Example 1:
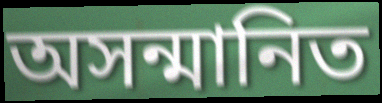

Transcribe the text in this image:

অসন্মানিত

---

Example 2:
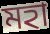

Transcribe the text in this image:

মহা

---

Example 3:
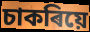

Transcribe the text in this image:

চাকৰিয়ে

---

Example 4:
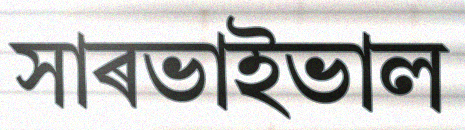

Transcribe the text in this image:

সাৰভাইভাল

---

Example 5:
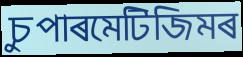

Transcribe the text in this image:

চুপাৰমেটিজিমৰ